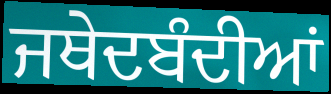
ਜਥੇਦਬੰਦੀਆਂ